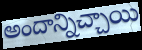
అందాన్నిచ్చాయి